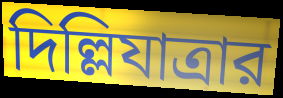
দিল্লিযাত্রার